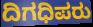
ದಿಗಧಿಪರು